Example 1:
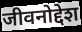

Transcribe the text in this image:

जीवनोद्देश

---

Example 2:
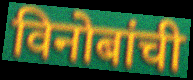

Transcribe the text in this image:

विनोबांची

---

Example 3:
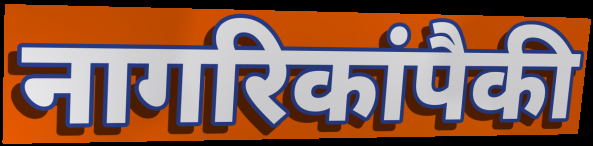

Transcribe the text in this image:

नागरिकांपैकी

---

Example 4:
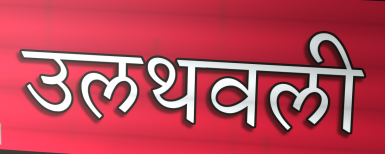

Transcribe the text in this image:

उलथवली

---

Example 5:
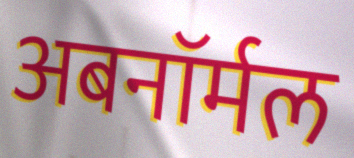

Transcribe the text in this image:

अबनॉर्मल